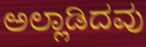
ಅಲ್ಲಾಡಿದವು